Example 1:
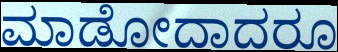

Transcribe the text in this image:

ಮಾಡೋದಾದರೂ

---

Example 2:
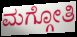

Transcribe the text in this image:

ಮಗ್ಗೋತಿ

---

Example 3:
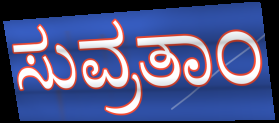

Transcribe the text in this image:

ಸುವ್ರತಾಂ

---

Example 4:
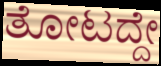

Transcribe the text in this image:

ತೋಟದ್ದೇ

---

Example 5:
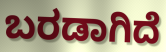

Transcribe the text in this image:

ಬರಡಾಗಿದೆ